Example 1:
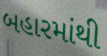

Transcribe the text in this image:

બહારમાંથી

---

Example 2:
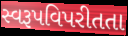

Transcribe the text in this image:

સ્વરૂપવિપરીતતા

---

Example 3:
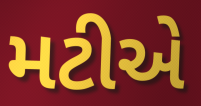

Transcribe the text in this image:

મટીએ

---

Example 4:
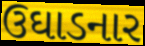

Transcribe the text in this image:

ઉઘાડનાર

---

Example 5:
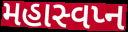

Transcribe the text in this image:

મહાસ્વપ્ન